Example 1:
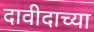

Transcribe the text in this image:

दावीदाच्या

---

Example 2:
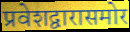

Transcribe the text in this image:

प्रवेशद्वारासमोर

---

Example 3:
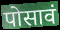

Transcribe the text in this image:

पोसावं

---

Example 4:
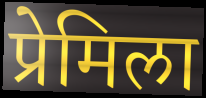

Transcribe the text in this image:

प्रेमिला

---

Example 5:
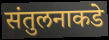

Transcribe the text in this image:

संतुलनाकडे